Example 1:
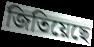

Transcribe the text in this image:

জিতিয়েছে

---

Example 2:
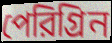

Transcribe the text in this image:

পেরিগ্রিন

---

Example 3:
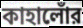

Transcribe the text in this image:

কাহালোঁর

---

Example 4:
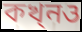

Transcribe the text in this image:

কখ্নও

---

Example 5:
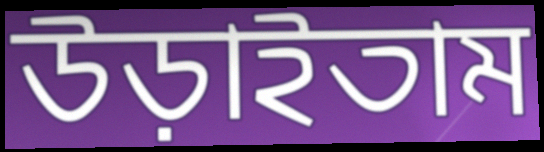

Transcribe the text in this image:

উড়াইতাম